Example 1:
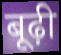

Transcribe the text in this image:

बूढ़ी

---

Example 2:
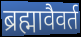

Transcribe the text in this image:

ब्रह्मावैवर्त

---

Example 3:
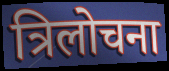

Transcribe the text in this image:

त्रिलोचना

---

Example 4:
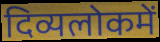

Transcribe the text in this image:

दिव्यलोकमें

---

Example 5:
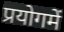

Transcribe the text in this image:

प्रयोगमें